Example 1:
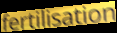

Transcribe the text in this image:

fertilisation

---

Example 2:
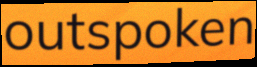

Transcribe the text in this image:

outspoken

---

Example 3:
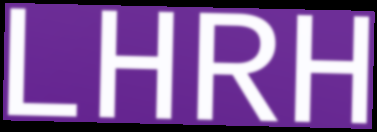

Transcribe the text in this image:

LHRH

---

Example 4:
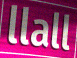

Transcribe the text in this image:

llall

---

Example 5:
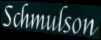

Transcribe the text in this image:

Schmulson